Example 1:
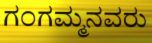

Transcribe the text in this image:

ಗಂಗಮ್ಮನವರು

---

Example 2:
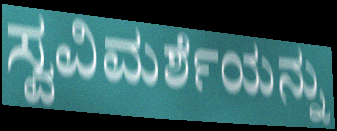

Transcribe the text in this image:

ಸ್ವವಿಮರ್ಶೆಯನ್ನು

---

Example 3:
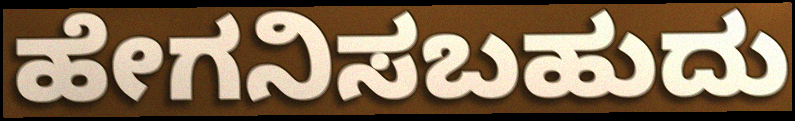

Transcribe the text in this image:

ಹೇಗನಿಸಬಹುದು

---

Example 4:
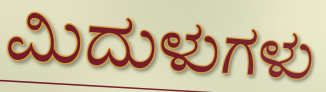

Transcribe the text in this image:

ಮಿದುಳುಗಳು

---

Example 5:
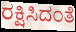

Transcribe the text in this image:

ರಕ್ಷಿಸಿದಂತೆ